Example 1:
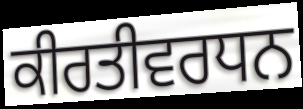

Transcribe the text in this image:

ਕੀਰਤੀਵਰਧਨ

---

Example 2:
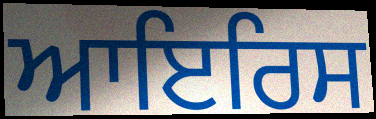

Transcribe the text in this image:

ਆਇਰਿਸ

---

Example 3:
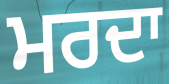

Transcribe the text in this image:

ਮਰਦਾ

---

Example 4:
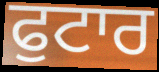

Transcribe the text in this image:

ਫੁਟਾਰ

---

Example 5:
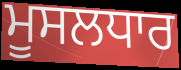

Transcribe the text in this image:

ਮੂਸਲਧਾਰ